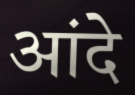
आंदे